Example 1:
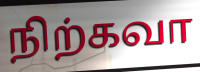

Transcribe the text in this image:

நிற்கவா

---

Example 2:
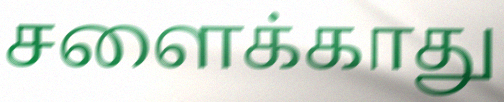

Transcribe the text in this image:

சளைக்காது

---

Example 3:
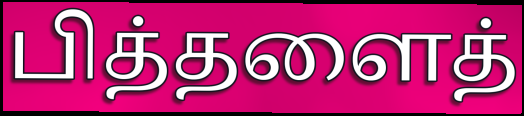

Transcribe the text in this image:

பித்தளைத்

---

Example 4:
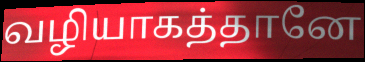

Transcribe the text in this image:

வழியாகத்தானே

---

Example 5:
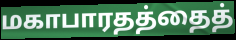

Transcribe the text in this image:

மகாபாரதத்தைத்